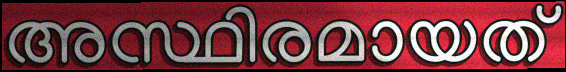
അസ്ഥിരമായത്